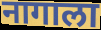
नागाला